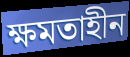
ক্ষমতাহীন